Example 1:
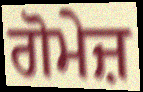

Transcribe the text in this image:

ਗੋਮੇਜ਼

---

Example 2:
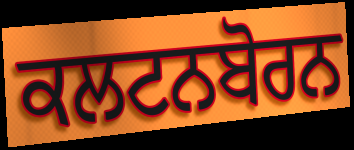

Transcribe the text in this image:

ਕਲਟਨਬੋਰਨ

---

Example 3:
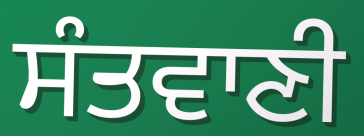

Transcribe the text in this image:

ਸੰਤਵਾਣੀ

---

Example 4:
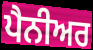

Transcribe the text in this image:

ਪੈਨੀਅਰ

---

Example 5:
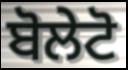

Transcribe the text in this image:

ਬੋਲੇਟੋ